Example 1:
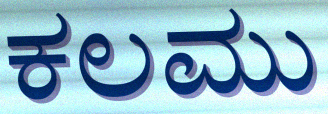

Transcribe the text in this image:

ಕಲಮು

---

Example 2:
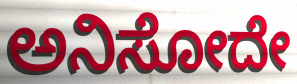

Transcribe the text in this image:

ಅನಿಸೋದೇ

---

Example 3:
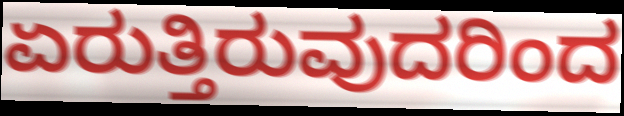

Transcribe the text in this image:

ಏರುತ್ತಿರುವುದರಿಂದ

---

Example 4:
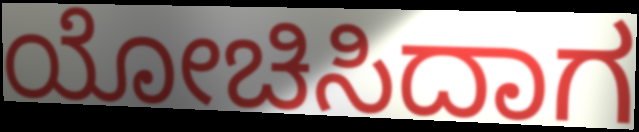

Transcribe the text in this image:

ಯೋಚಿಸಿದಾಗ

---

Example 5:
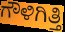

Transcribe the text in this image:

ಗೌಳಿಗಿತ್ತಿ